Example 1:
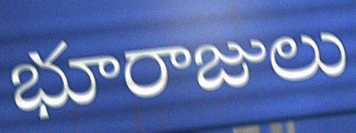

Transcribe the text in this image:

భూరాజులు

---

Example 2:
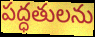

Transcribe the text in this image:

పద్ధతులను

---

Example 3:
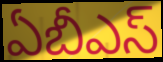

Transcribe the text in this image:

ఏబీఎస్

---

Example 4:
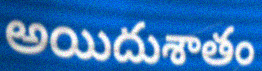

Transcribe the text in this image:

అయిదుశాతం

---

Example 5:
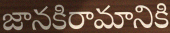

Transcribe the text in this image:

జానకిరామానికి